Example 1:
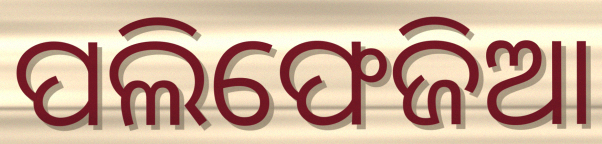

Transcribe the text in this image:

ପଲିଫେଜିଆ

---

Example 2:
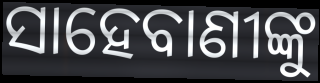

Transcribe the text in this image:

ସାହେବାଣୀଙ୍କୁ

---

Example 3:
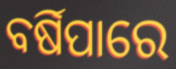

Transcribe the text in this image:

ବର୍ଷିପାରେ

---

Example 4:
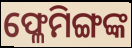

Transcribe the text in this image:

ଫ୍ଳେମିଙ୍ଗଙ୍କ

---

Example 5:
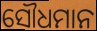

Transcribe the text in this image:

ସୌଧମାନ